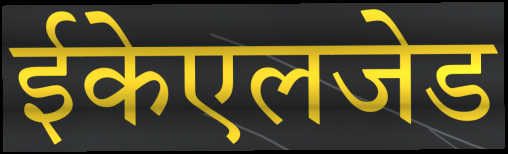
ईकेएलजेड